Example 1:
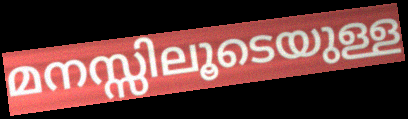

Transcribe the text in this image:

മനസ്സിലൂടെയുള്ള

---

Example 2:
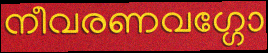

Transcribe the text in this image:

നീവരണവഗ്ഗോ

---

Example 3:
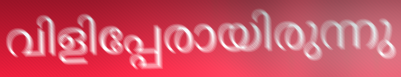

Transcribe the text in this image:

വിളിപ്പേരായിരുന്നു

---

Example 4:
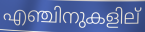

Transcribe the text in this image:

എഞ്ചിനുകളില്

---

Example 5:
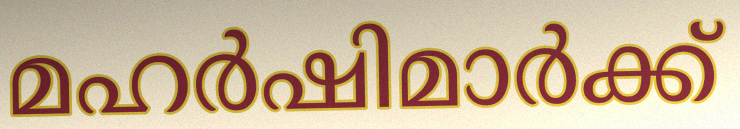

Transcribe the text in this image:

മഹർഷിമാർക്ക്